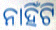
ନାହିଁଟି